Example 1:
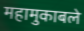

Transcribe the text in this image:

महामुकाबले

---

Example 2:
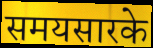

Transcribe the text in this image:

समयसारके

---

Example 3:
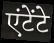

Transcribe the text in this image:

एंटेंटे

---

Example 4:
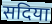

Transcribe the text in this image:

सदिया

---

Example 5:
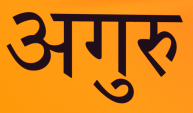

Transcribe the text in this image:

अगुरु